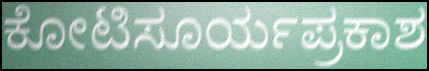
ಕೋಟಿಸೂರ್ಯಪ್ರಕಾಶ